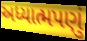
અધ્યાત્મપણું